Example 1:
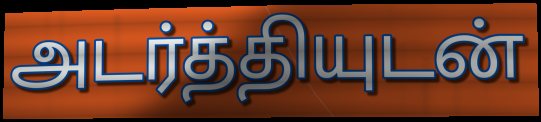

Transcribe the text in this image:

அடர்த்தியுடன்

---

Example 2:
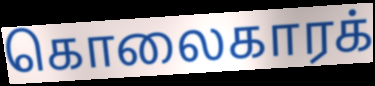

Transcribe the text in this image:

கொலைகாரக்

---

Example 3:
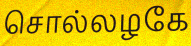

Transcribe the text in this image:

சொல்லழகே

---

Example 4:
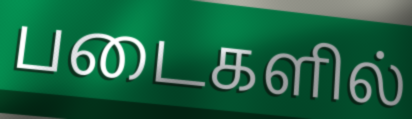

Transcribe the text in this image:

படைகளில்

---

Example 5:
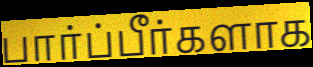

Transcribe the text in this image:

பார்ப்பீர்களாக